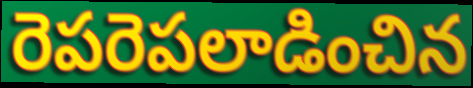
రెపరెపలాడించిన